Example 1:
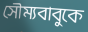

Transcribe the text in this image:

সৌম্যবাবুকে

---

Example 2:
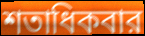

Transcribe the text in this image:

শতাধিকবার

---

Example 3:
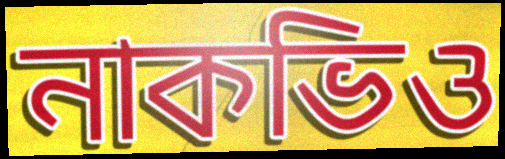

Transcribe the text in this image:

নাকভিও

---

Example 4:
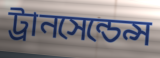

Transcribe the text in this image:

ট্রানসেন্ডেন্স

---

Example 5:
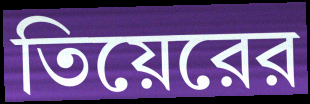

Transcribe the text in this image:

তিয়েরের